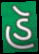
હૅ